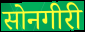
सोनगीरी